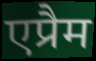
एप्रैम